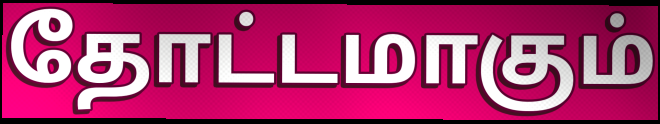
தோட்டமாகும்